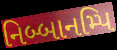
નિબ્બાનમ્પિ